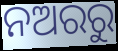
ନଅରରୁ